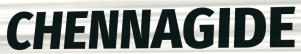
CHENNAGIDE